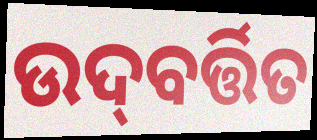
ଉଦ୍‌ବର୍ତ୍ତିତ